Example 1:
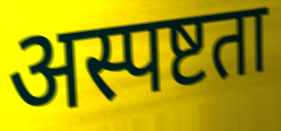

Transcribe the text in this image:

अस्पष्टता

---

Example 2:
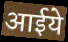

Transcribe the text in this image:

आईये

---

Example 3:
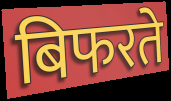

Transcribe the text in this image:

बिफरते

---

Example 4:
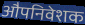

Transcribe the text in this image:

औपनिवेशक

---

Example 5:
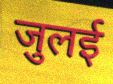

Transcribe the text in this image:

जुलई